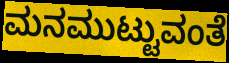
ಮನಮುಟ್ಟುವಂತೆ